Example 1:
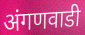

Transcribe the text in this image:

अंगणवाडी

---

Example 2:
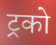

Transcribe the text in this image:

ट्रको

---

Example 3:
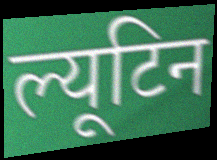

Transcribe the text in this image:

ल्यूटिन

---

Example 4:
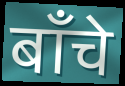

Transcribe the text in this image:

बाँचे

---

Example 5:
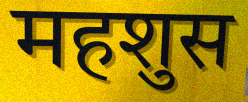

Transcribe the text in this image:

महशुस